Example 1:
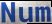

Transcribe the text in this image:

Num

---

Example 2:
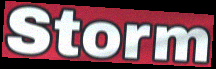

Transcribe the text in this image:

Storm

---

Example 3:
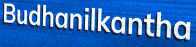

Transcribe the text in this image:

Budhanilkantha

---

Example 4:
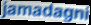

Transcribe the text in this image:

jamadagni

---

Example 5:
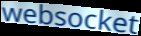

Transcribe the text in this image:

websocket